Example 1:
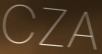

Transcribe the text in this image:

CZA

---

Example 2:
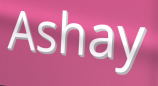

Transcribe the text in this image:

Ashay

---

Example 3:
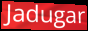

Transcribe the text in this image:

Jadugar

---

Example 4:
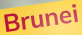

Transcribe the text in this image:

Brunei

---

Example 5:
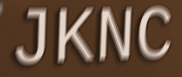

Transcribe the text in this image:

JKNC